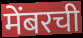
मेंबरची